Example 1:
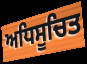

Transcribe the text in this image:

ਅਧਿਸੂਚਿਤ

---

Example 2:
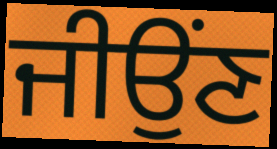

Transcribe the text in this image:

ਜੀਉਂਣ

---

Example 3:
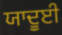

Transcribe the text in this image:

ਯਾਦੂਈ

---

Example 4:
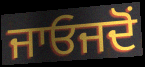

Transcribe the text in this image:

ਜਾਓਜਦੋਂ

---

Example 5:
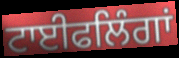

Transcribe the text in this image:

ਟਾਈਫਲਿੰਗਾਂ